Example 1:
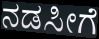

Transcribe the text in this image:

ನಡಸೀಗೆ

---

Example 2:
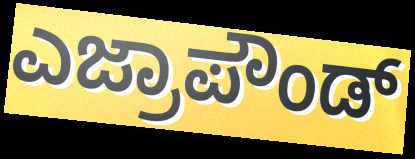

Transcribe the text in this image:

ಎಜ್ರಾಪೌಂಡ್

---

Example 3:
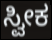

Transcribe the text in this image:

ಸ್ವೀಕ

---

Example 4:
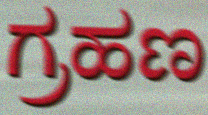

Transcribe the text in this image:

ಗ್ರಹಣ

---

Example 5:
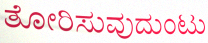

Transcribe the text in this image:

ತೋರಿಸುವುದುಂಟು